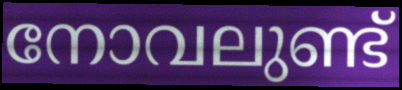
നോവലുണ്ട്